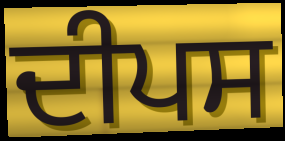
ਦੀਪਸ